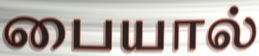
பையால்